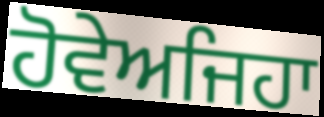
ਹੋਵੇਅਜਿਹਾ